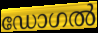
ഡോഗൽ